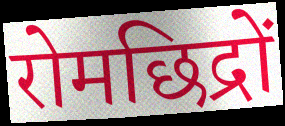
रोमछिद्रों